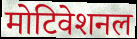
मोटिवेशनल